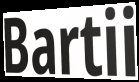
Bartii